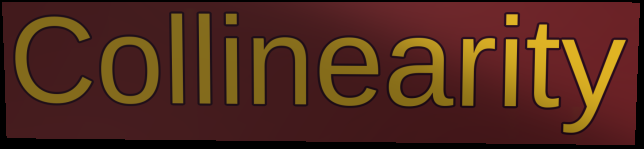
Collinearity